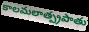
కాలమలాత్ప్రపాతు